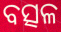
ବତ୍ସଳ